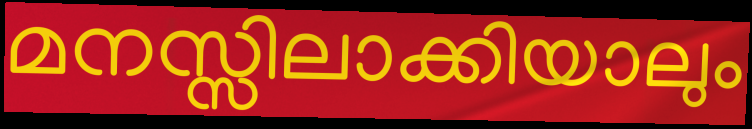
മനസ്സിലാക്കിയാലും